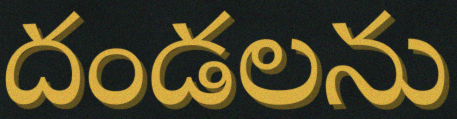
దండలను